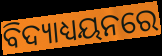
ବିଦ୍ୟାଧ୍ୟୟନରେ